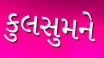
કુલસુમને